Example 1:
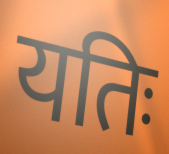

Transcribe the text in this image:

यतिः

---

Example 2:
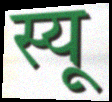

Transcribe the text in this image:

स्यू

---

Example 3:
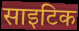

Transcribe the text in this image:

साइटिक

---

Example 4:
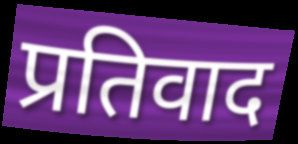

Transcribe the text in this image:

प्रतिवाद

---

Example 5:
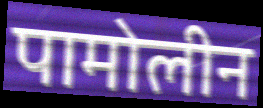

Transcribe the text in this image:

पामोलीन